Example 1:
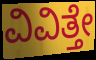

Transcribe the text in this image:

ವಿವಿತ್ತೇ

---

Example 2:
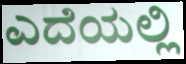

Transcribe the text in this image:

ಎದೆಯಲ್ಲಿ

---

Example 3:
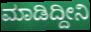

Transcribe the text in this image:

ಮಾಡಿದ್ದೀನಿ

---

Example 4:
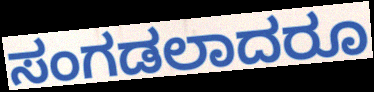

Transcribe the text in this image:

ಸಂಗಡಲಾದರೂ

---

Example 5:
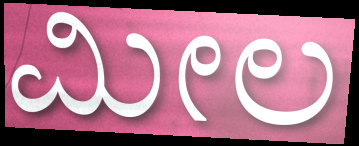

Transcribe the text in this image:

ಮೀಲ